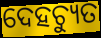
ଦେହଚ୍ୟୁତ